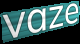
vaze